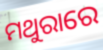
ମଥୁରାରେ